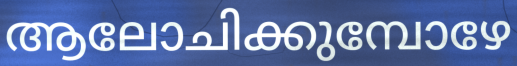
ആലോചിക്കുമ്പോഴേ